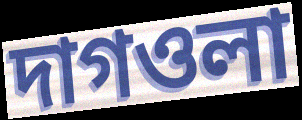
দাগওলা